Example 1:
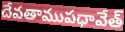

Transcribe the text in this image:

దేవతాముపధావేత్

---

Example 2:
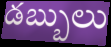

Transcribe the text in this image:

డబ్బులు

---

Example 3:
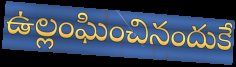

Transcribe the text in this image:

ఉల్లంఘించినందుకే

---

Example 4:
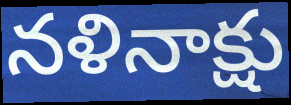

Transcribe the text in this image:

నళినాక్షు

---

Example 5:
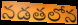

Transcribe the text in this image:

నడతలోన